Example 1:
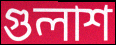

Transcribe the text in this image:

গুলাশ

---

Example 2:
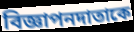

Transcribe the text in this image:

বিজ্ঞাপনদাতাকে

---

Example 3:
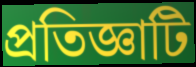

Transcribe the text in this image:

প্রতিজ্ঞাটি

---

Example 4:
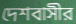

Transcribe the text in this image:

দেশবাসীর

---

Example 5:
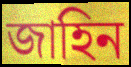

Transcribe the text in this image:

জাহিন